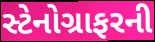
સ્ટેનોગ્રાફરની